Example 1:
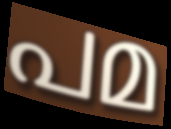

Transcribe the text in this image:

പമ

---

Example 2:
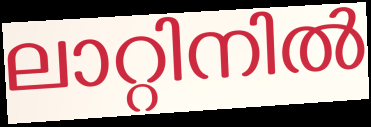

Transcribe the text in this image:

ലാറ്റിനിൽ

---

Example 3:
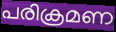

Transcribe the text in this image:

പരിക്രമണ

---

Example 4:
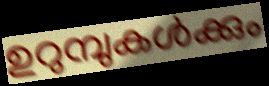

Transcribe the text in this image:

ഉറുമ്പുകൾക്കും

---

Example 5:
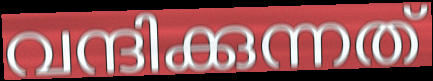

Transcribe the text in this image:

വന്ദിക്കുന്നത്